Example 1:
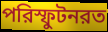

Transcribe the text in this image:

পরিস্ফুটনরত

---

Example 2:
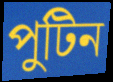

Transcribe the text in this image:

পুটিন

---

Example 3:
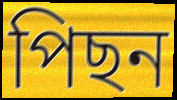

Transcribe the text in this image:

পিছন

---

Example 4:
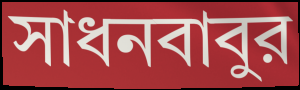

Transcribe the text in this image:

সাধনবাবুর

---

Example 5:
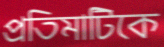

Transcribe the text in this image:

প্রতিমাটিকে